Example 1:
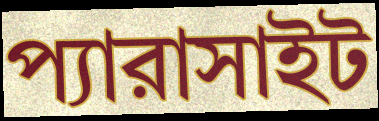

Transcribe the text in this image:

প্যারাসাইট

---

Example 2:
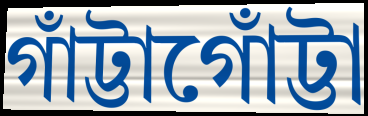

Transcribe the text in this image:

গাঁট্টাগোঁট্টা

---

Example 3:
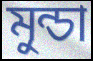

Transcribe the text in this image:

মুন্ডা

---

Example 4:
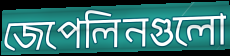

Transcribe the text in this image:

জেপেলিনগুলো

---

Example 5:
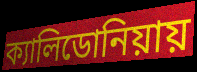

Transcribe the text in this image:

ক্যালিডোনিয়ায়